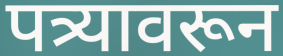
पत्र्यावरून